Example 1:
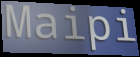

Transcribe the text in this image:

Maipi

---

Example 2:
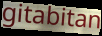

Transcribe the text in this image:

gitabitan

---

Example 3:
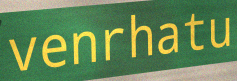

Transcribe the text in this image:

venrhatu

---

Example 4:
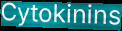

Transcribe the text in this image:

Cytokinins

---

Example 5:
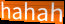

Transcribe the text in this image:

hahah